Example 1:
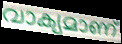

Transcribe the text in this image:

വാക്യമാണ്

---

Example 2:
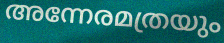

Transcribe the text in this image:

അന്നേരമത്രയും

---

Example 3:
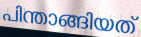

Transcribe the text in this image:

പിന്താങ്ങിയത്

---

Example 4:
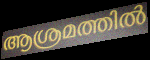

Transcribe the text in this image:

ആശ്രമത്തിൽ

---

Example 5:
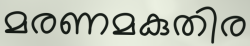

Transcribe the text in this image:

മരണമകുതിര